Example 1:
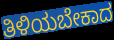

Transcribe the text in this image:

ತಿಳಿಯಬೇಕಾದ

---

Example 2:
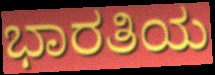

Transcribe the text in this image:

ಭಾರತಿಯ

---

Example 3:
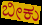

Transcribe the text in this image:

ಬೀಕು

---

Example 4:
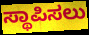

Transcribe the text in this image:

ಸ್ಥಾಪಿಸಲು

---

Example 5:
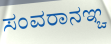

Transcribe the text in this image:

ಸಂವರಾನಞ್ಚ